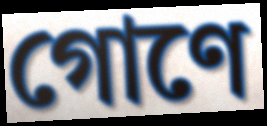
গোণে